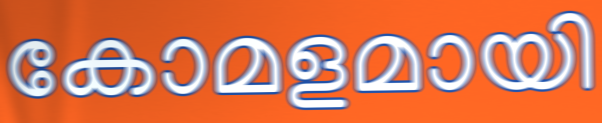
കോമളമായി